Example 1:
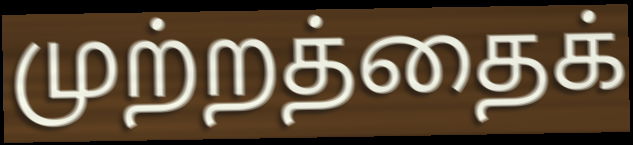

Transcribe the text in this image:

முற்றத்தைக்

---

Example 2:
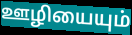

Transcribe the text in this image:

ஊழியையும்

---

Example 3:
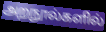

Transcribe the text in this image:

அறநூல்களில்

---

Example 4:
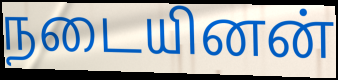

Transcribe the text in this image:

நடையினன்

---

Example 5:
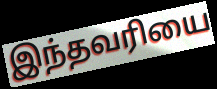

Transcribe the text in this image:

இந்தவரியை